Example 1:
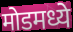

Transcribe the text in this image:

मोडमध्ये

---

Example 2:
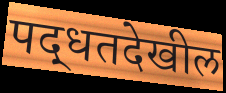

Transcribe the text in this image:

पद्धतदेखील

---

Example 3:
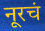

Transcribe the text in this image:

नूरचं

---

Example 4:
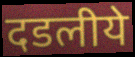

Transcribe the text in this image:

दडलीये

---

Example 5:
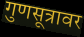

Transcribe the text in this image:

गुणसूत्रावर